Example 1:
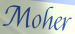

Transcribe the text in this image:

Moher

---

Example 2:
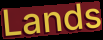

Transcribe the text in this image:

Lands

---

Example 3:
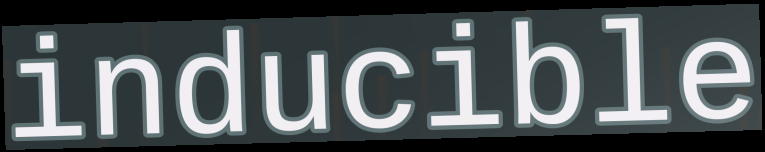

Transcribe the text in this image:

inducible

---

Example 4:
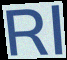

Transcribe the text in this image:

Rl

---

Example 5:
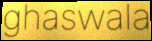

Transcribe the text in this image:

ghaswala